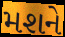
મશને